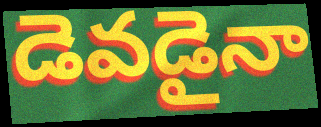
డెవడైనా